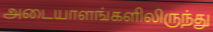
அடையாளங்களிலிருந்து